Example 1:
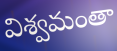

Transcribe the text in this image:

విశ్వమంతా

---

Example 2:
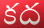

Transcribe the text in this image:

కద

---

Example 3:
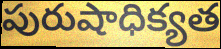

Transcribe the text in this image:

పురుషాధిక్యత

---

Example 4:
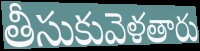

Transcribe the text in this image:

తీసుకువెళతారు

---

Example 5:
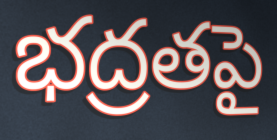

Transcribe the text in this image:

భద్రతపై